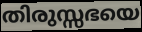
തിരുസ്സഭയെ